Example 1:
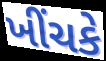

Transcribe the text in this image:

ખીંચકે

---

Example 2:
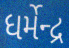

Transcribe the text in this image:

ધર્મેન્દ્ર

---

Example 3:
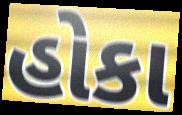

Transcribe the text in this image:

હોકા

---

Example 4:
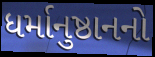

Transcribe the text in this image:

ધર્માનુષ્ઠાનનો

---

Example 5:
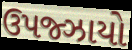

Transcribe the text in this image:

ઉપજ્ઝાયો